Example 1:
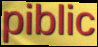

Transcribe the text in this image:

piblic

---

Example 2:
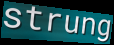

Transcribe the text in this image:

strung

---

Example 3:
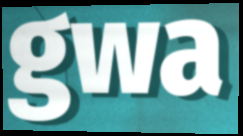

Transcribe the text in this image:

gwa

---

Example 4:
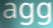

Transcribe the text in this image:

agg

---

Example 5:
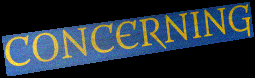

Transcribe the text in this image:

CONCERNING